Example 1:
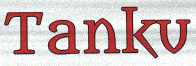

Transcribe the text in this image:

Tanku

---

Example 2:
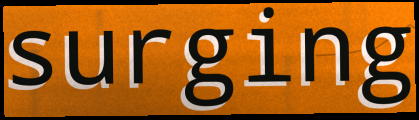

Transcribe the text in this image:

surging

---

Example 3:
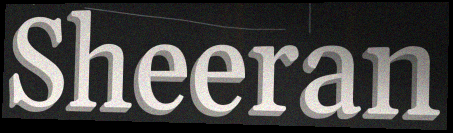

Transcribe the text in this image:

Sheeran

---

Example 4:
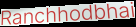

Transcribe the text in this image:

Ranchhodbhai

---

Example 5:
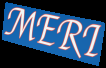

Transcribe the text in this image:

MERI